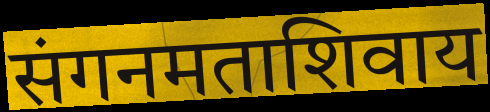
संगनमताशिवाय